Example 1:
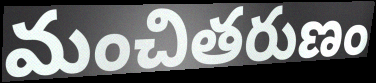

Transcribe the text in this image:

మంచితరుణం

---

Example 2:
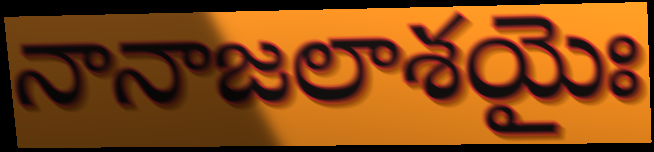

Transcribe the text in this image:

నానాజలాశయైః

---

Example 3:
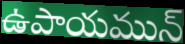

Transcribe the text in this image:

ఉపాయమున్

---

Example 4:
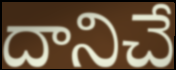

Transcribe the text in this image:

దానిచే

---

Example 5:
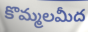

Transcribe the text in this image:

కొమ్మలమీద